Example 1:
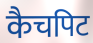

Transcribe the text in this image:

कैचपिट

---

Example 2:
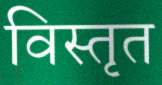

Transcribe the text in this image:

विस्तृत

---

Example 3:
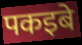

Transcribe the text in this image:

पकइबे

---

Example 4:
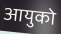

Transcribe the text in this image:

आयुको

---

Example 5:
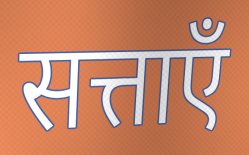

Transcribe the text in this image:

सत्ताएँ